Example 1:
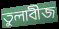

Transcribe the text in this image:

তুলাবীজ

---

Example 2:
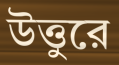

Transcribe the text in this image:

উত্তুরে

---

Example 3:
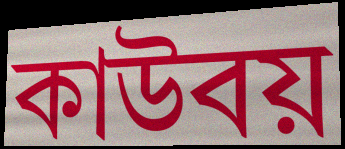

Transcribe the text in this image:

কাউবয়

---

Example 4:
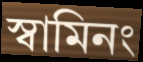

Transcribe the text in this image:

স্বামিনং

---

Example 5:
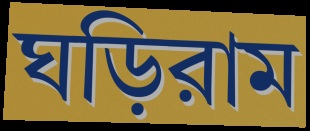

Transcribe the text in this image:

ঘড়িরাম